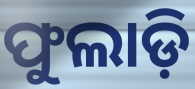
ଫୁଲାଡ଼ି